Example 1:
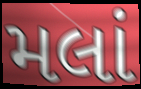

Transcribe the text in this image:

મલાં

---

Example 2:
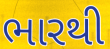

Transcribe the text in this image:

ભારથી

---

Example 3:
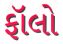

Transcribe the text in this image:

ફૉલો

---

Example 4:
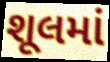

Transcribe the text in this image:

શૂલમાં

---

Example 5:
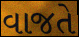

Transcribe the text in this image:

વાજતે